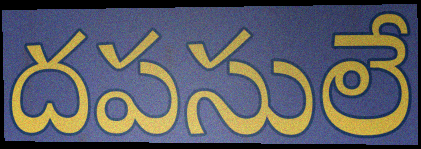
దపసులే